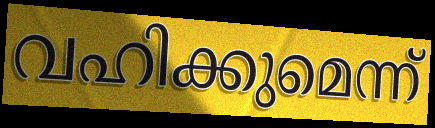
വഹിക്കുമെന്ന്